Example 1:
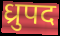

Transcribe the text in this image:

ध्रुपद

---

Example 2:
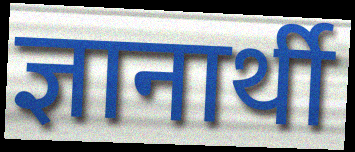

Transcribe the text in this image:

ज्ञानार्थी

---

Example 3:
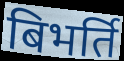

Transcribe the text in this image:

बिभर्ति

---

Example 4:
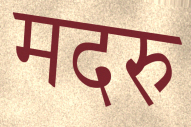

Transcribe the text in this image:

मदरु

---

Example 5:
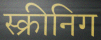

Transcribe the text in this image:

स्क्रीनिग